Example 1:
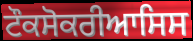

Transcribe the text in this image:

ਟੌਕਸੋਕਰੀਆਸਿਸ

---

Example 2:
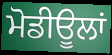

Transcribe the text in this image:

ਮੋਡੀਊਲਾਂ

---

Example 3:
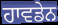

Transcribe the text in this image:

ਹਾਵਡੇਨ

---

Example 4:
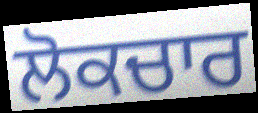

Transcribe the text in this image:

ਲੋਕਚਾਰ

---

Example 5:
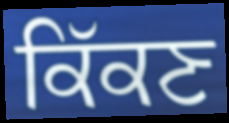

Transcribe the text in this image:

ਕਿੱਕਣ